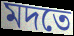
মদতে